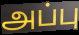
அப்பு